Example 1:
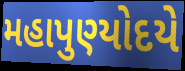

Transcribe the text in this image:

મહાપુણ્યોદયે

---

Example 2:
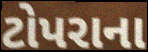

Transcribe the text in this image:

ટોપરાના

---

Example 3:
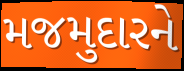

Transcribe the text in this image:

મજમુદારને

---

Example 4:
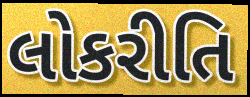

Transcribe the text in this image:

લોકરીતિ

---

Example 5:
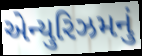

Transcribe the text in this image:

એન્યુરિઝમનું